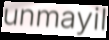
unmayil